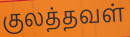
குலத்தவள்